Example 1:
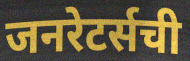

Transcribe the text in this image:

जनरेटर्सची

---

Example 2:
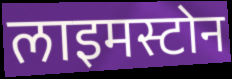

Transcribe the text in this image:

लाइमस्टोन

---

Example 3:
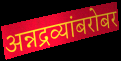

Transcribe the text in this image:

अन्नद्रव्यांबरोबर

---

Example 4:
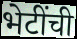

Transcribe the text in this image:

भेटींची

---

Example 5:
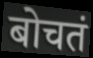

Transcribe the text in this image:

बोचतं